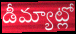
డీమ్యాట్లో